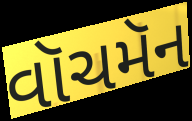
વૉચમૅન